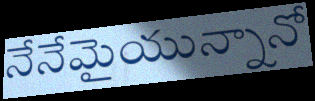
నేనేమైయున్నానో